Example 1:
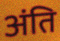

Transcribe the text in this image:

अंति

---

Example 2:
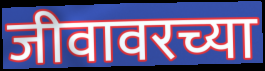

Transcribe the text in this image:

जीवावरच्या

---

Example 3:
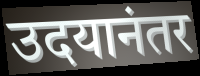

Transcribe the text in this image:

उदयानंतर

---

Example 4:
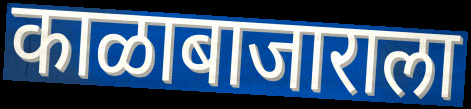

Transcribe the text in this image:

काळाबाजाराला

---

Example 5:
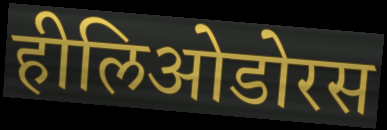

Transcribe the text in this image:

हीलिओडोरस